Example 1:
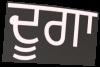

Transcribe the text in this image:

ਦੂਗਾ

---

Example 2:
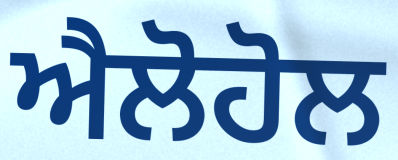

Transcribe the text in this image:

ਐਲੋਹੋਲ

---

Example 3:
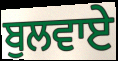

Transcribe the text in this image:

ਬੁਲਵਾਏ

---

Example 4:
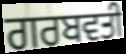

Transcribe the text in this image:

ਗਰਬਵਤੀ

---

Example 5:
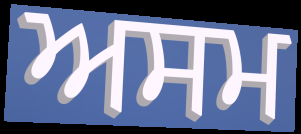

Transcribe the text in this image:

ਅਸਮ